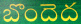
బొందెద